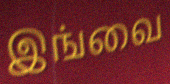
இங்வை